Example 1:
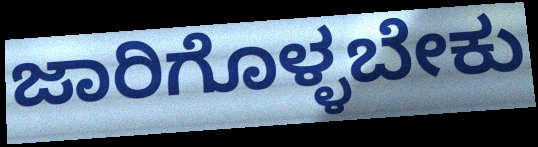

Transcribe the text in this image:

ಜಾರಿಗೊಳ್ಳಬೇಕು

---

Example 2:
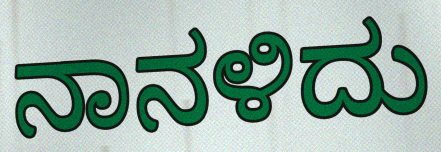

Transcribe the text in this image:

ನಾನಳಿದು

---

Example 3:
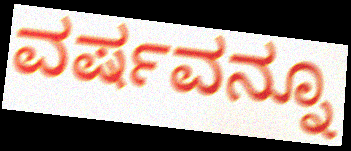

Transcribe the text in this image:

ವರ್ಷವನ್ನೂ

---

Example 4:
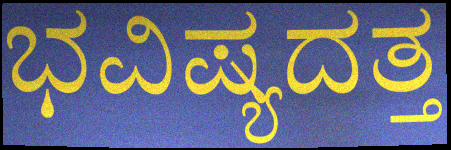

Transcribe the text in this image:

ಭವಿಷ್ಯದತ್ತ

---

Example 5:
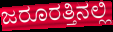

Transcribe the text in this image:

ಜರೂರತ್ತಿನಲ್ಲಿ